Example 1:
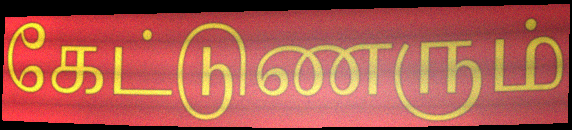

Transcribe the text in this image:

கேட்டுணரும்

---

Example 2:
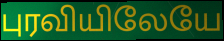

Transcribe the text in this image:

புரவியிலேயே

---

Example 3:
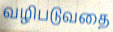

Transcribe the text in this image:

வழிபடுவதை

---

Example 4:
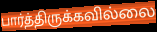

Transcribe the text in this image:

பார்த்திருக்கவில்லை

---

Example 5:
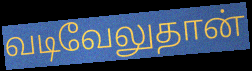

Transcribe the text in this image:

வடிவேலுதான்